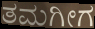
ತಮಗೀಗ